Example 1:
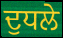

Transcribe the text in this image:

ਦੁਧਲੇ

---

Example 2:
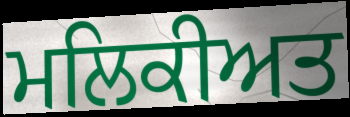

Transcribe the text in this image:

ਮਲਿਕੀਅਤ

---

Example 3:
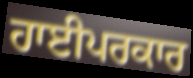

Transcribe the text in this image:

ਹਾਈਪਰਕਾਰ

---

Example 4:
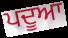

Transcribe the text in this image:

ਪਦੂਆ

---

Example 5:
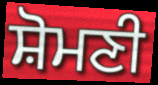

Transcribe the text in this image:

ਸ਼ੋਮਣੀ